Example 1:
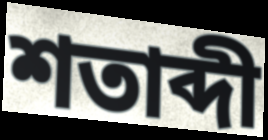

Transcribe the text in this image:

শতাব্দী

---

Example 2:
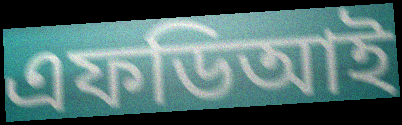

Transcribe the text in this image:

এফডিআই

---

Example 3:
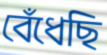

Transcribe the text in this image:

বেঁধেছি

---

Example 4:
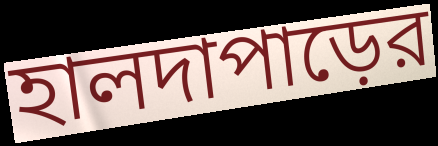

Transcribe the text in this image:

হালদাপাড়ের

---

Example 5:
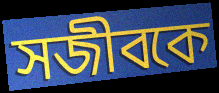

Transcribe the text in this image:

সজীবকে